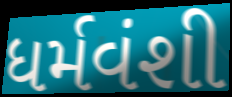
ધર્મવંશી